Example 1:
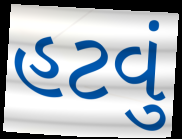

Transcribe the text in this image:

હટવું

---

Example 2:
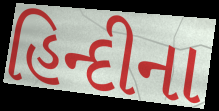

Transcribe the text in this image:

હિન્દીના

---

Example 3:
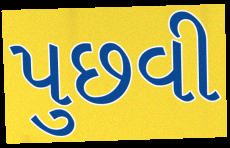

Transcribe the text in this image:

પુછવી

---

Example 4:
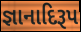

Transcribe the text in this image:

જ્ઞાનાદિરૂપ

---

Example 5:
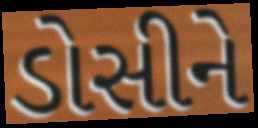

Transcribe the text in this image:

ડોસીને